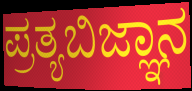
ಪ್ರತ್ಯಬಿಜ್ಞಾನ